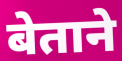
बेताने